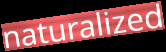
naturalized